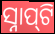
ସ୍ନାପ୍‍ଟି